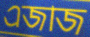
এজাজ